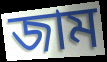
জাম